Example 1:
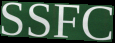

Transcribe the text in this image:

SSFC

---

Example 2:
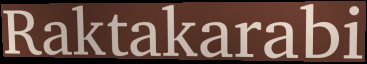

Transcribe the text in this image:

Raktakarabi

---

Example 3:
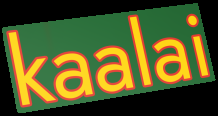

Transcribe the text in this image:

kaalai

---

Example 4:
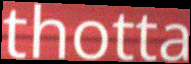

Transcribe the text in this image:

thotta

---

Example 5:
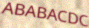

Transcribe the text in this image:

ABABACDC